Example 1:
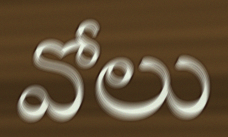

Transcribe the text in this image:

వోలు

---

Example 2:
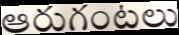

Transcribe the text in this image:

ఆరుగంటలు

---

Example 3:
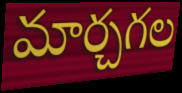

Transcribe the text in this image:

మార్చగల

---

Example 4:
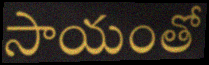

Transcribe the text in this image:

సాయంతో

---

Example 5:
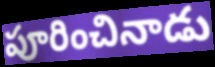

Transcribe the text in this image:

పూరించినాడు